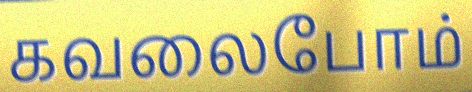
கவலைபோம்